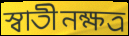
স্বাতীনক্ষত্র